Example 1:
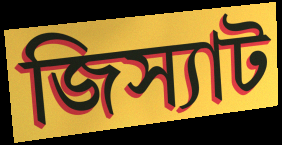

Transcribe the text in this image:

জিস্যাট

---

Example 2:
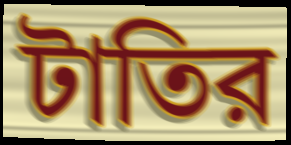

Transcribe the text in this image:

টাতির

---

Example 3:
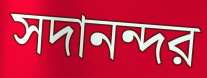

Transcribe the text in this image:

সদানন্দর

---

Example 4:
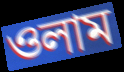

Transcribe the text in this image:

ওলাম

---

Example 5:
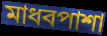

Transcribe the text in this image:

মাধবপাশা